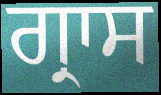
ਗ੍ਰਾਸ